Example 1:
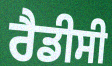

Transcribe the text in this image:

ਰੈਡੀਸੀ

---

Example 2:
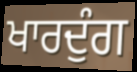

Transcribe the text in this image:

ਖਾਰਦੁੰਗ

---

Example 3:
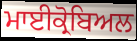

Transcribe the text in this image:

ਮਾਈਕ੍ਰੋਬਿਅਲ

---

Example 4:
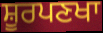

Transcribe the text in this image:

ਸ਼ੂਰਪਣਖਾ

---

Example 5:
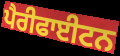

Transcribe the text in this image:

ਪੈਰੀਫਾਈਟਨ